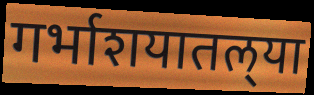
गर्भाशयातल्या